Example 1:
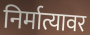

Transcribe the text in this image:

निर्मात्यावर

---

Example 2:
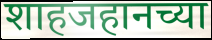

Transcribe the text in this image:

शाहजहानच्या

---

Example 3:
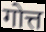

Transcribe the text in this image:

गोत्त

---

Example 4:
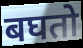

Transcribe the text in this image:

बघतो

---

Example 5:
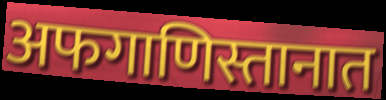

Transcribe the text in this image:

अफगाणिस्तानात